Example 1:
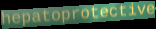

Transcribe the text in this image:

hepatoprotective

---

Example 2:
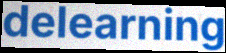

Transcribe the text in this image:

delearning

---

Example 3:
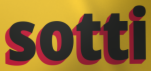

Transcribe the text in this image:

sotti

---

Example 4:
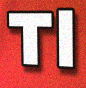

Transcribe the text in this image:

Tl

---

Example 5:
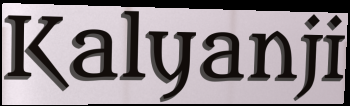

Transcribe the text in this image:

Kalyanji